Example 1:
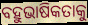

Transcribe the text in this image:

ବହୁଭାଷିକତାକୁ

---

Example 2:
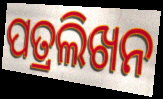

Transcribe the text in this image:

ପତ୍ରଲିଖନ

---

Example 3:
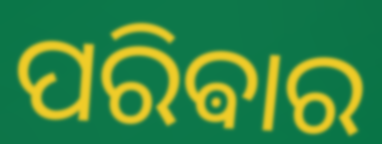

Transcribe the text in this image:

ପରିଵାର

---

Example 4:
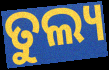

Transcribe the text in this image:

ତୁଲ୍ୟ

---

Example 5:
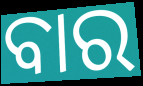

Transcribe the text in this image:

ବାର